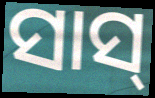
ସାସ୍